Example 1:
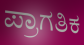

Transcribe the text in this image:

ಪ್ರಾಗತಿಕ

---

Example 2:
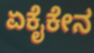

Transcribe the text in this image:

ಏಕೈಕೇನ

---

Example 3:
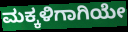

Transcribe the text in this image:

ಮಕ್ಕಳಿಗಾಗಿಯೇ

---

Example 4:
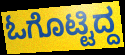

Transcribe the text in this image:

ಓಗೊಟ್ಟಿದ್ದ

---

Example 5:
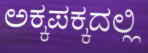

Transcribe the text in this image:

ಅಕ್ಕಪಕ್ಕದಲ್ಲಿ